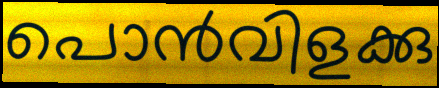
പൊൻവിളക്കു